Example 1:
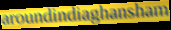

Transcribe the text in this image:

aroundindiaghansham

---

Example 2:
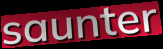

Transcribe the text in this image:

saunter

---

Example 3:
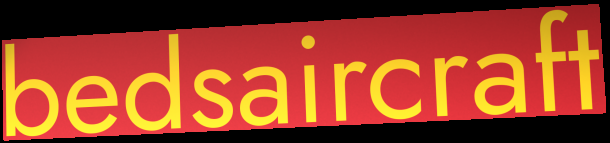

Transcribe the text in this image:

bedsaircraft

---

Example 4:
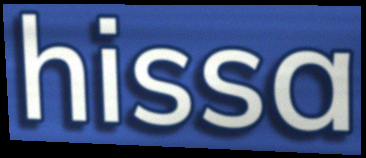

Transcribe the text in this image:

hissa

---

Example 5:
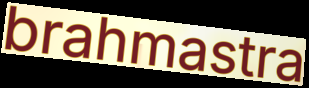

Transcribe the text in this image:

brahmastra